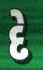
દે